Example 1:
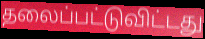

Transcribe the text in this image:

தலைப்பட்டுவிட்டது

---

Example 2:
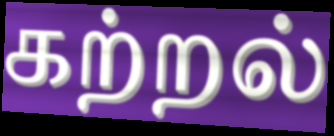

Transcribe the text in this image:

கற்றல்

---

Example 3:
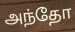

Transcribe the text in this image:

அந்தோ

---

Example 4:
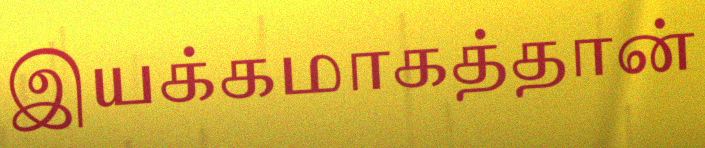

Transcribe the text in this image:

இயக்கமாகத்தான்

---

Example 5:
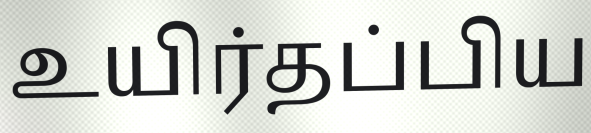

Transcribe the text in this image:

உயிர்தப்பிய